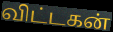
விட்டகன்